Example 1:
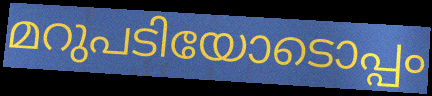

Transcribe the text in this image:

മറുപടിയോടൊപ്പം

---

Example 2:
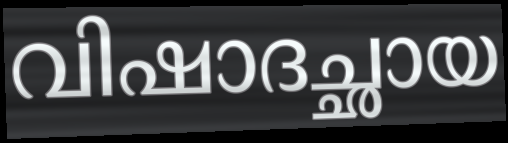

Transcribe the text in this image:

വിഷാദച്ഛായ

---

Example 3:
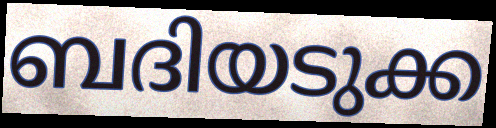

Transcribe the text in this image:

ബദിയടുക്ക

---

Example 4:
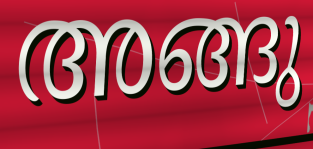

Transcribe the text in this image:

അങ്ങു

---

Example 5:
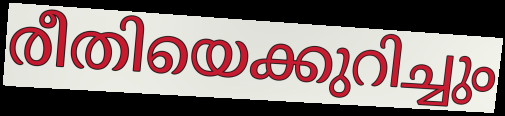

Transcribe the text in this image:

രീതിയെക്കുറിച്ചും